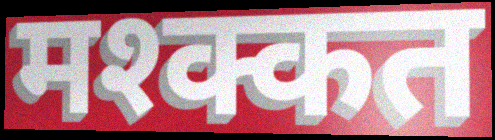
मश्क्कत